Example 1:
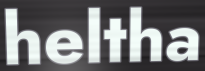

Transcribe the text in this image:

heltha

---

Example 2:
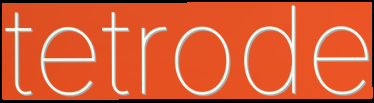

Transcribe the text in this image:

tetrode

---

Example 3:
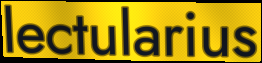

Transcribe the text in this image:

lectularius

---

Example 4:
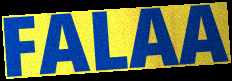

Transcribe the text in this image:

FALAA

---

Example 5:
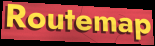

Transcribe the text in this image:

Routemap